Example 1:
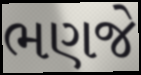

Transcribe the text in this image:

ભણજે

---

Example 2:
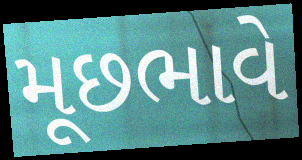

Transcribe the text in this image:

મૂછભાવે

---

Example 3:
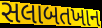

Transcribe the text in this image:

સલાબતખાન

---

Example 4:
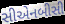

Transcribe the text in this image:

સીએનબીસી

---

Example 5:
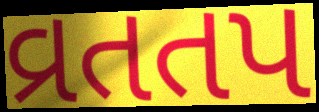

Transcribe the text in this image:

વ્રતતપ